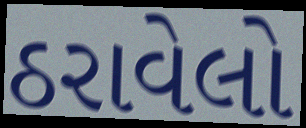
ઠરાવેલો